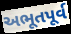
અભૂતપૂર્વ